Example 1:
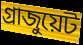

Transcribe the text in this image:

গ্রাজুয়েট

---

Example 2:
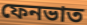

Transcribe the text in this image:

ফেনভাত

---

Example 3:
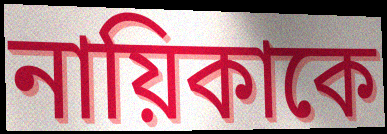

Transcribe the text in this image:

নায়িকাকে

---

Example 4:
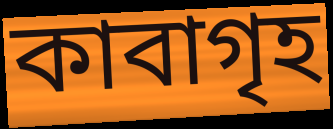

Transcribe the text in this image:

কাবাগৃহ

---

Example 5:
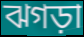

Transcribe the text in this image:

ঝগড়া